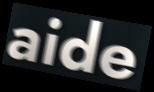
aide